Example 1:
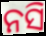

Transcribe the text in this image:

ନସି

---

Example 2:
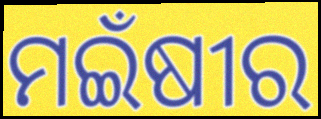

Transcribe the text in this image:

ମଇଁଷୀର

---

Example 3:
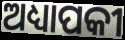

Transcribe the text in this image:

ଅଧ୍ୟାପକୀ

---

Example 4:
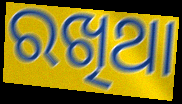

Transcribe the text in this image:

ରଖିଥା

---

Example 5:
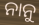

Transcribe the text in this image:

ନାନୁ